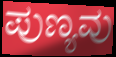
ಪುಣ್ಯವು